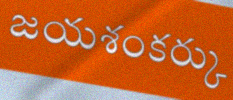
జయశంకర్కు